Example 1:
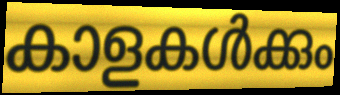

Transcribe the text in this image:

കാളകൾക്കും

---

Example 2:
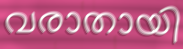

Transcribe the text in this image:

വരാതായി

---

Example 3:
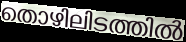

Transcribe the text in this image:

തൊഴിലിടത്തിൽ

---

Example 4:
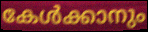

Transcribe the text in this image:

കേൾക്കാനും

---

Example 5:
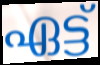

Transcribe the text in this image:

ഏട്ട്